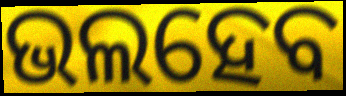
ଭଲହେବ